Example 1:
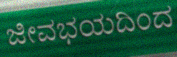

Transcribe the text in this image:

ಜೀವಭಯದಿಂದ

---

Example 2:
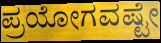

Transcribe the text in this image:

ಪ್ರಯೋಗವಷ್ಟೇ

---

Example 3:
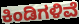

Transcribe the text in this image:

ಕಿಂಡಿಗಳಿವೆ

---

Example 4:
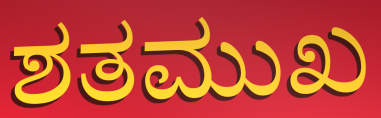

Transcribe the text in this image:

ಶತಮುಖ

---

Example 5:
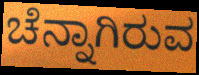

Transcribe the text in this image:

ಚೆನ್ನಾಗಿರುವ